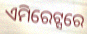
ଏମିରେଟ୍ସରେ